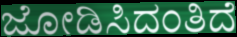
ಜೋಡಿಸಿದಂತಿದೆ